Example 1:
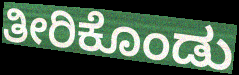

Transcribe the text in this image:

ತೀರಿಕೊಂಡು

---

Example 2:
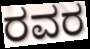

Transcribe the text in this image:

ರವರ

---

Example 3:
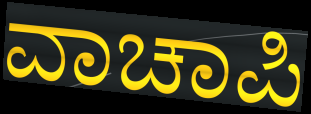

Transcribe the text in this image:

ವಾಚಾಪಿ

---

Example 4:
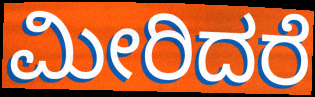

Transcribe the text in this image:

ಮೀರಿದರೆ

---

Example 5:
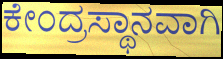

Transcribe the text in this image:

ಕೇಂದ್ರಸ್ಥಾನವಾಗಿ